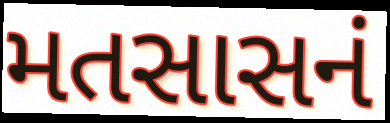
મતસાસનં